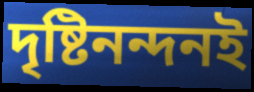
দৃষ্টিনন্দনই